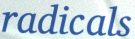
radicals